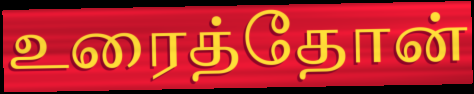
உரைத்தோன்